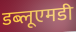
डब्लूएमडी